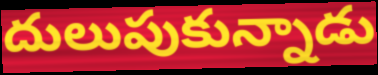
దులుపుకున్నాడు